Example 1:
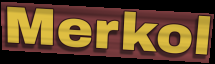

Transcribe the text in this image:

Merkol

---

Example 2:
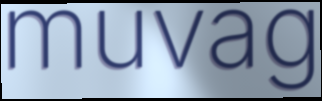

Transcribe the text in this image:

muvag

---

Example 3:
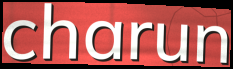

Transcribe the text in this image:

charun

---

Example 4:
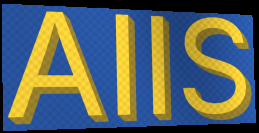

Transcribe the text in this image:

AIIS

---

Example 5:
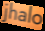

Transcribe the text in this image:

jhalo